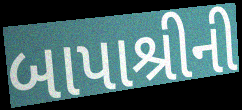
બાપાશ્રીની